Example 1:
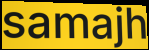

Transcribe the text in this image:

samajh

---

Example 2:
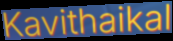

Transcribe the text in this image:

Kavithaikal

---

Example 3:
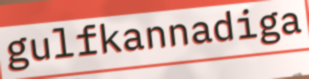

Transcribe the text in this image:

gulfkannadiga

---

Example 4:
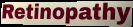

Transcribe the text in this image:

Retinopathy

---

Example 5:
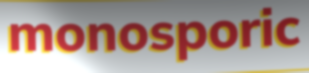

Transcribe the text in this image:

monosporic